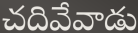
చదివేవాడు